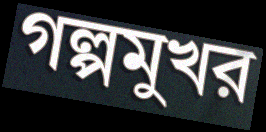
গল্পমুখর